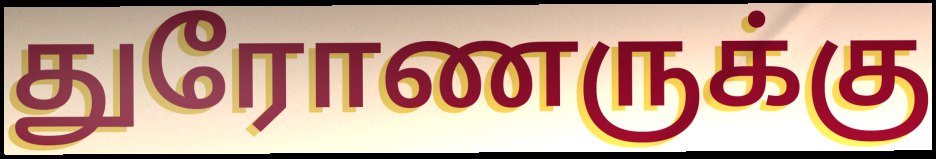
துரோணருக்கு